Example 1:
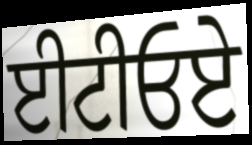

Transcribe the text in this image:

ਈਟੀਓਏ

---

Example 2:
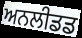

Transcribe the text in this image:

ਅਨਲੀਡਡ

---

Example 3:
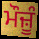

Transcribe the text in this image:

ਮੌਜ਼ੂੰ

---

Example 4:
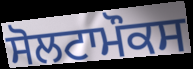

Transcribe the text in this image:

ਸੋਲਟਾਮੌਕਸ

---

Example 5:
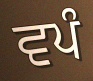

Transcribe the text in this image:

ਵਪੰ